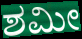
ಶಮೀ